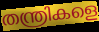
തന്ത്രികളെ